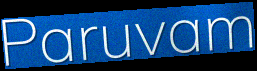
Paruvam